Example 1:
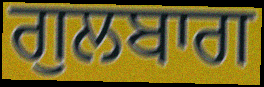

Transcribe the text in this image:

ਗੁਲਬਾਗ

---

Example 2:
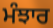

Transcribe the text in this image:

ਮੰਝਾਰ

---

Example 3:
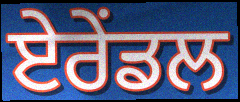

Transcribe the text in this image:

ਏਰੇਂਡਲ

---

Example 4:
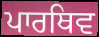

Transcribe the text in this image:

ਪਾਰਥਿਵ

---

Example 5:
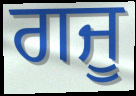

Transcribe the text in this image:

ਗਜੂ